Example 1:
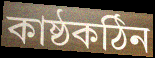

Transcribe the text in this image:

কাষ্ঠকঠিন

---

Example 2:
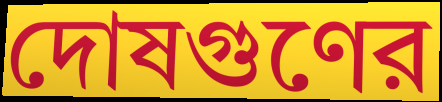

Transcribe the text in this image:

দোষগুণের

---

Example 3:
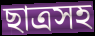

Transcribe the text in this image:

ছাত্রসহ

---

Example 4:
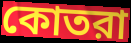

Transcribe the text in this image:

কোতরা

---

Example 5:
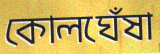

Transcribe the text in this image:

কোলঘেঁষা